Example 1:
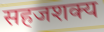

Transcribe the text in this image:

सहजशक्य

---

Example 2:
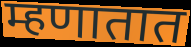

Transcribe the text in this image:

म्हणातात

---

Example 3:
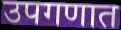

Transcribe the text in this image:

उपगणात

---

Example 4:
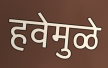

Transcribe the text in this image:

हवेमुळे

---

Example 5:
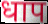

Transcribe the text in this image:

धाप